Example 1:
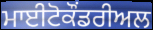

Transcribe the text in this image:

ਮਾਈਟੋਕੌਂਡਰੀਅਲ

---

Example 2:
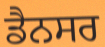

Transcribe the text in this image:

ਡੈਨਸਰ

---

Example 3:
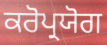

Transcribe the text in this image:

ਕਰੋਪ੍ਰਯੋਗ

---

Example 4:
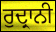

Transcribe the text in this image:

ਰੁਦ੍ਰਾਨੀ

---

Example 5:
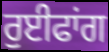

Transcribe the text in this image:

ਰੁਈਫਾਂਗ